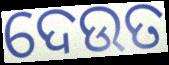
ଦେଉତ